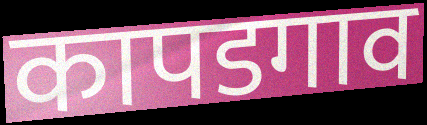
कापडगाव